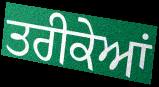
ਤਰੀਕੇਆਂ